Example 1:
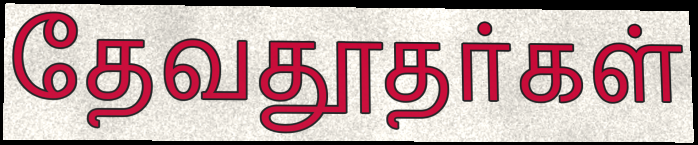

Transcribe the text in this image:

தேவதூதர்கள்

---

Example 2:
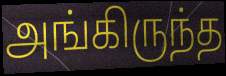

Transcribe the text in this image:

அங்கிருந்த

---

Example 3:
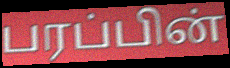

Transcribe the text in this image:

பரப்பின்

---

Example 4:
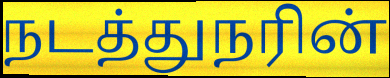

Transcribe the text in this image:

நடத்துநரின்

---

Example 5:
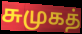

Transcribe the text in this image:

சுமுகத்